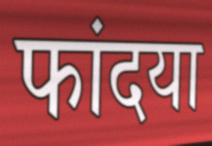
फांदया